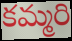
కమ్మరి